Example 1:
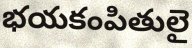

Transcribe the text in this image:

భయకంపితులై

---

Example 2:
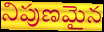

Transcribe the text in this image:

నిపుణమైన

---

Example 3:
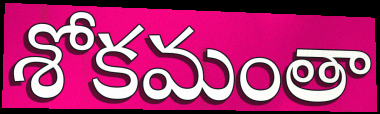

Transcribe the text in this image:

శోకమంతా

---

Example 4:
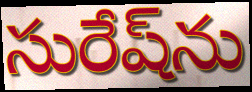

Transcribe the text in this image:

సురేష్‌ను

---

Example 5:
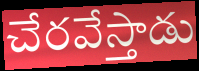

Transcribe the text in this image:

చేరవేస్తాడు